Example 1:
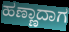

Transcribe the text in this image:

ಹಣ್ಣಾದಾಗ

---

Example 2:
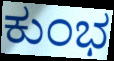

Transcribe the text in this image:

ಕುಂಭ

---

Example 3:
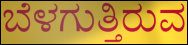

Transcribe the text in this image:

ಬೆಳಗುತ್ತಿರುವ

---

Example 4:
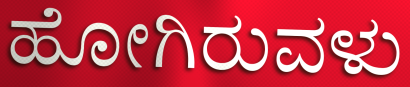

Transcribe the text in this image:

ಹೋಗಿರುವಳು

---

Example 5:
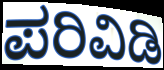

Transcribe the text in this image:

ಪರಿವಿಡಿ